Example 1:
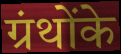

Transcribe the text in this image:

ग्रंथोंके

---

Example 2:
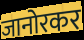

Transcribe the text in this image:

जानोरकर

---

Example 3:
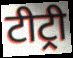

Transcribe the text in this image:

टीट्री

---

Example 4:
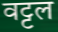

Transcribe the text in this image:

वट्टल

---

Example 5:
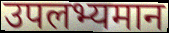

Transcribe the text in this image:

उपलभ्यमान